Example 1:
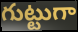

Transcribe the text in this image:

గుట్టుగా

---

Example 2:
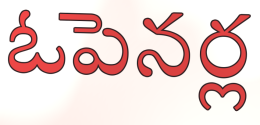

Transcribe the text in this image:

ఓపెనర్ల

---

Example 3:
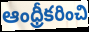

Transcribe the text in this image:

ఆంధ్రీకరించి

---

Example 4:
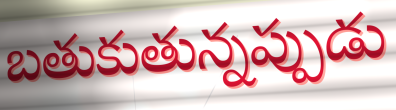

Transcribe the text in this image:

బతుకుతున్నప్పుడు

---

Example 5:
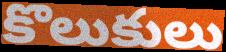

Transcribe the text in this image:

కొలుకులు